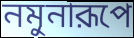
নমুনারূপে